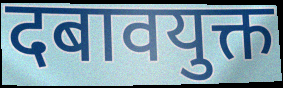
दबावयुक्त